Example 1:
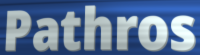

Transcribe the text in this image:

Pathros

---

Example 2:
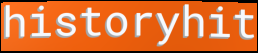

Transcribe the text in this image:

historyhit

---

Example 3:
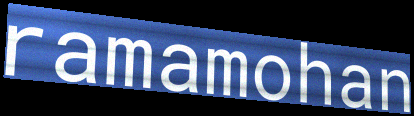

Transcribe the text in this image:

ramamohan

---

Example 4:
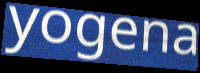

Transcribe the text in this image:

yogena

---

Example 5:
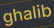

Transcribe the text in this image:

ghalib